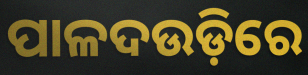
ପାଳଦଉଡ଼ିରେ